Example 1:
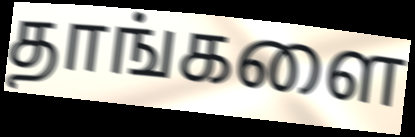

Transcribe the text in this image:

தாங்களை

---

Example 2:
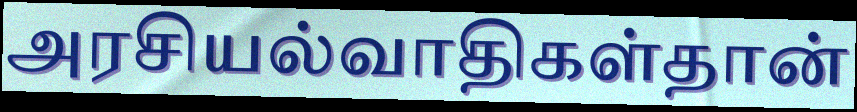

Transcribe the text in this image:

அரசியல்வாதிகள்தான்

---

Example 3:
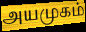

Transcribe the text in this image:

அயமுகம்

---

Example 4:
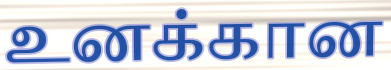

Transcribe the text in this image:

உனக்கான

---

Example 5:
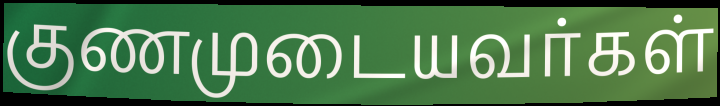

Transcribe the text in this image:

குணமுடையவர்கள்